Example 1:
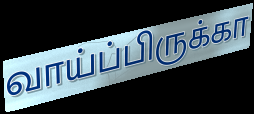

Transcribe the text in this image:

வாய்ப்பிருக்கா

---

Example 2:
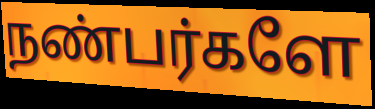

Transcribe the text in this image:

நண்பர்களே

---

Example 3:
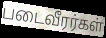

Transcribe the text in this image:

படைவீரர்கள்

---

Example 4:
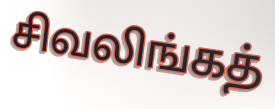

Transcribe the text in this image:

சிவலிங்கத்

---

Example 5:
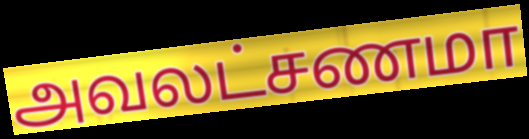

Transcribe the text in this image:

அவலட்சணமா